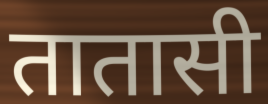
तातासी